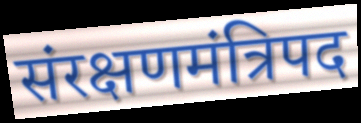
संरक्षणमंत्रिपद